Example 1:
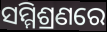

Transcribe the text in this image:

ସମ୍ମିଶ୍ରଣରେ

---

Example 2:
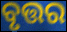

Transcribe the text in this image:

ବୃତ୍ତର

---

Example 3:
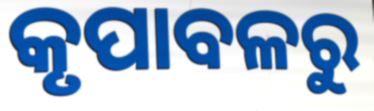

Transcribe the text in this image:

କୃପାବଳରୁ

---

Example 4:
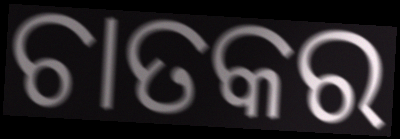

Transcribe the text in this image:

ଚାତକର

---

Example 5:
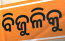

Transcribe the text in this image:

ବିଜୁଳିକୁ